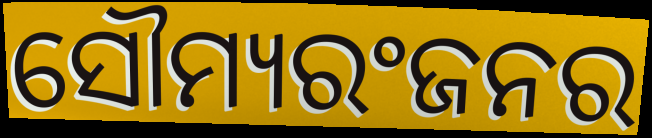
ସୌମ୍ୟରଂଜନର